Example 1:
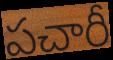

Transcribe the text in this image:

పచారీ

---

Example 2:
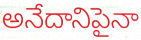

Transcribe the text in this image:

అనేదానిపైనా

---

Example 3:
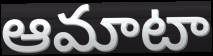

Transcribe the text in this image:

ఆమాటా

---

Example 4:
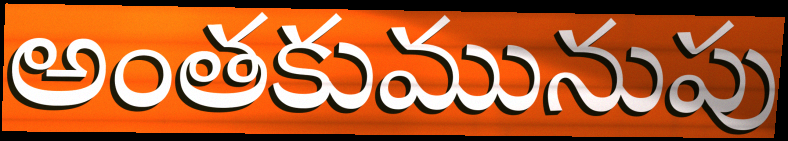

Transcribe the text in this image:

అంతకుమునుపు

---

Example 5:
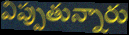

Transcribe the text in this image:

విప్పుతున్నారు